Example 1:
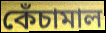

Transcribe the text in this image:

কেঁচামাল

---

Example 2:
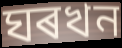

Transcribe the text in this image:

ঘৰখন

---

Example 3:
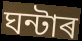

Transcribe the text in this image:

ঘন্টাৰ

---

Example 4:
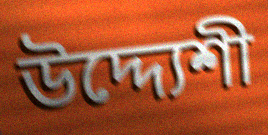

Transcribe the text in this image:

উদ্দ্যেশী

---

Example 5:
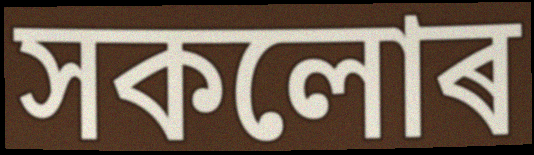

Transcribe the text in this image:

সকলোৰ